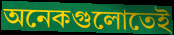
অনেকগুলোতেই